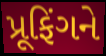
પ્રૂફિંગને